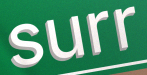
surr